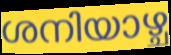
ശനിയാഴ്ച